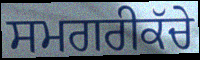
ਸਮਗਰੀਕੱਚੇ